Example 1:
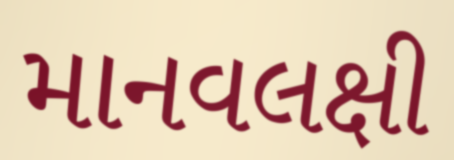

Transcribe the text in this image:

માનવલક્ષી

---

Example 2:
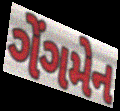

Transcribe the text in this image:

ગેંગમેન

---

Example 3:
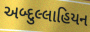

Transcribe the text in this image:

અબ્દુલ્લાહિયન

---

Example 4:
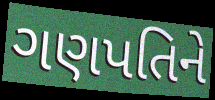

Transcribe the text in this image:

ગણપતિને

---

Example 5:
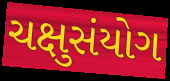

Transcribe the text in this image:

ચક્ષુસંયોગ